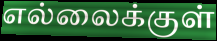
எல்லைக்குள்